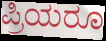
ಪ್ರಿಯರೂ